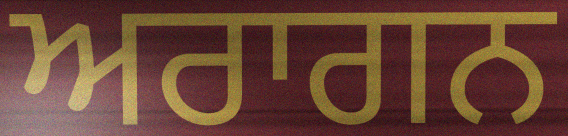
ਅਰਾਗਨ